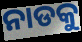
ନାଡକୁ